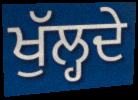
ਖੁੱਲ੍ਹਦੇ